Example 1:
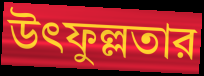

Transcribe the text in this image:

উৎফুল্লতার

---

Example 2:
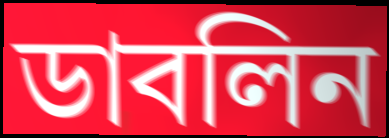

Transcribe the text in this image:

ডাবলিন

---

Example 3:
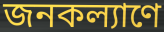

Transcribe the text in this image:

জনকল্যাণে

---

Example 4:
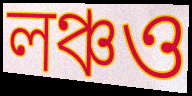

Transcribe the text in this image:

লঞ্চও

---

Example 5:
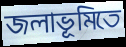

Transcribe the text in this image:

জলাভূমিতে